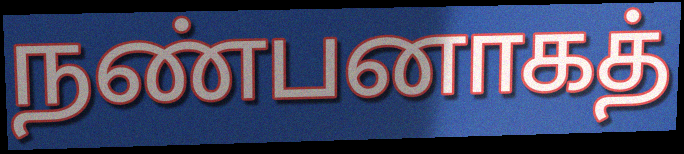
நண்பனாகத்